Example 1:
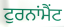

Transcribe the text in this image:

ਟੁਰਨਾਂਮੈਂਟ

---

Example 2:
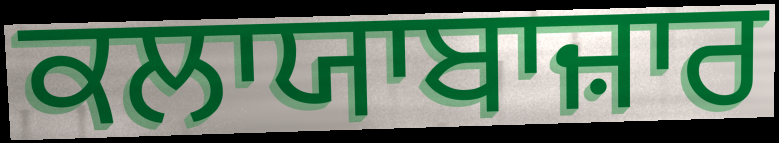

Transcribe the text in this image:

ਕਲਾਯਾਬਾਜ਼ਾਰ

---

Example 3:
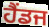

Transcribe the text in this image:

ਹੈਂਡਜ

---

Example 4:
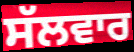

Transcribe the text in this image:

ਸੱਲਵਾਰ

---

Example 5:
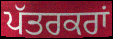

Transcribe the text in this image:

ਪੱਤਰਕਰਾਂ